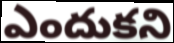
ఎందుకని